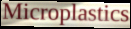
Microplastics